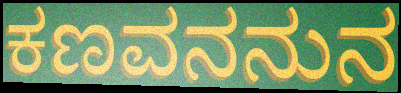
ಕಣವನನುನ